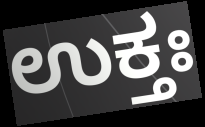
ಉಕ್ತಃ